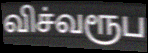
விச்வரூப